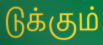
டுக்கும்